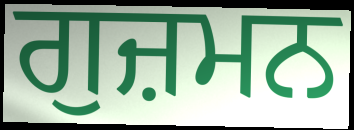
ਗੁਜ਼ਮਨ